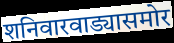
शनिवारवाड्यासमोर